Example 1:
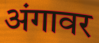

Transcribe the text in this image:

अंगावर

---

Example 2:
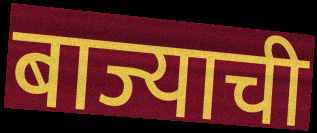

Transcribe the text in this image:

बाज्याची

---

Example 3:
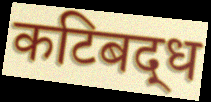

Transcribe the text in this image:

कटिबद्ध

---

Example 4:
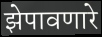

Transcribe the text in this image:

झेपावणारे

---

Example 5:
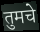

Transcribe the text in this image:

तुमचे